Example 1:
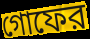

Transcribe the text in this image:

গোফের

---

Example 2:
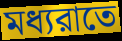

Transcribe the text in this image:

মধ্যরাতে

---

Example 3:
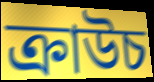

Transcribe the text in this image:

ক্রাউচ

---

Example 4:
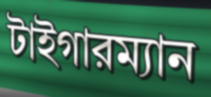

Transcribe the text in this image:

টাইগারম্যান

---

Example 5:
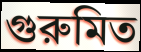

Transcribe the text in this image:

গুরুমিত